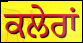
ਕਲੇਰਾਂ